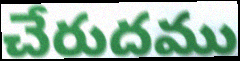
చేరుదము